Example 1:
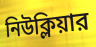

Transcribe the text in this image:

নিউক্লিয়ার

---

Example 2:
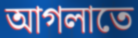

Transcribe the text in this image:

আগলাতে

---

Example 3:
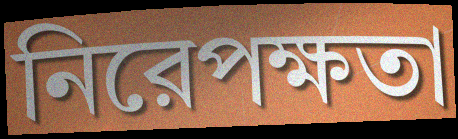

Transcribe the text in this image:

নিরেপক্ষতা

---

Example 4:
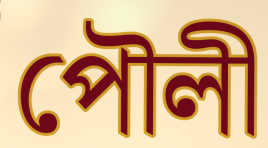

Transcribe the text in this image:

পৌলী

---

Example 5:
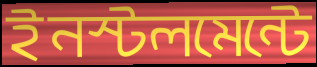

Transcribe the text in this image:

ইনস্টলমেন্টে